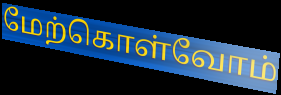
மேற்கொள்வோம்